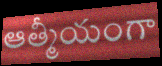
ఆత్మీయంగా